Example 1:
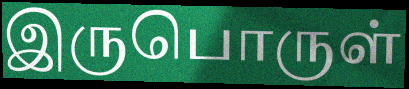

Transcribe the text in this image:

இருபொருள்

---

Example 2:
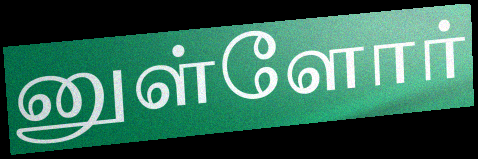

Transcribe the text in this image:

னுள்ளோர்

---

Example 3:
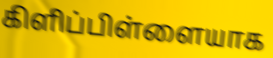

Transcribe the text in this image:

கிளிப்பிள்ளையாக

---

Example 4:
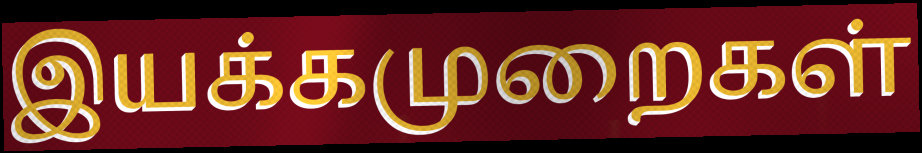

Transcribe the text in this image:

இயக்கமுறைகள்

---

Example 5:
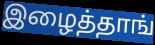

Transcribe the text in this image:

இழைத்தாங்